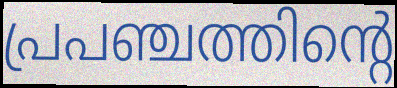
പ്രപഞ്ചത്തിന്റെ